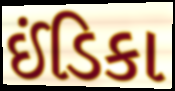
ઈંડિકા